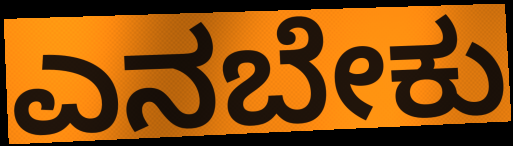
ಎನಬೇಕು